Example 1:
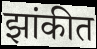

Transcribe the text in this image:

झांकीत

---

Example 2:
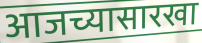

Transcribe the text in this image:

आजच्यासारखा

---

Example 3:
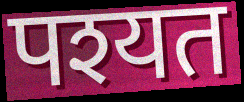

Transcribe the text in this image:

पश्यत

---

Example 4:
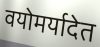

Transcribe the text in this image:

वयोमर्यादेत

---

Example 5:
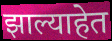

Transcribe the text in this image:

झाल्याहेत